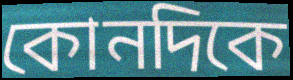
কোনদিকে